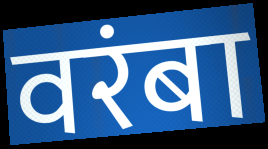
वरंबा